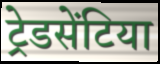
ट्रेडसेंटिया